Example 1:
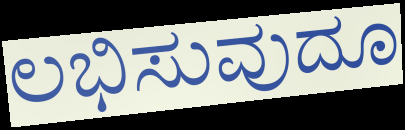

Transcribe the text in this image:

ಲಭಿಸುವುದೂ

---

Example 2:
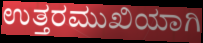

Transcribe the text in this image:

ಉತ್ತರಮುಖಿಯಾಗಿ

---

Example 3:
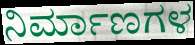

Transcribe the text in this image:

ನಿರ್ಮಾಣಗಳ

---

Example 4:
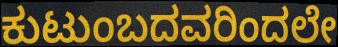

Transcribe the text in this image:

ಕುಟುಂಬದವರಿಂದಲೇ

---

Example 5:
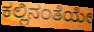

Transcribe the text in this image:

ಕಲ್ಲಿನಂತೆಯೇ